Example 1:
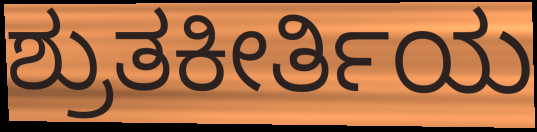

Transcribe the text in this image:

ಶ್ರುತಕೀರ್ತಿಯ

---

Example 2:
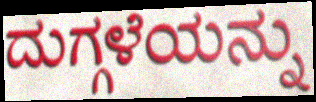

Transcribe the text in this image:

ದುಗ್ಗಳೆಯನ್ನು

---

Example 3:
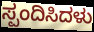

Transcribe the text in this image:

ಸ್ಪಂದಿಸಿದಳು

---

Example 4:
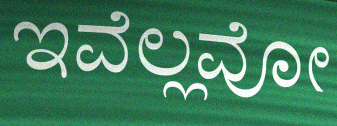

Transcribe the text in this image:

ಇವೆಲ್ಲವೋ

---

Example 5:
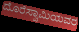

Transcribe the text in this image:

ದೊರೆಸ್ವಾಮಿಯವರ